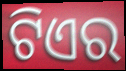
ଟିଏର